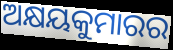
ଅକ୍ଷୟକୁମାରର